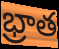
భ్రాత